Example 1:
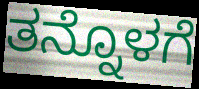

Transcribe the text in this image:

ತನ್ನೊಳಗೆ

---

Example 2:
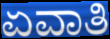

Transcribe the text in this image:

ಏವಾತಿ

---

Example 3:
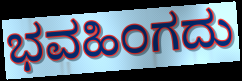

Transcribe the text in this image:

ಭವಹಿಂಗದು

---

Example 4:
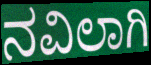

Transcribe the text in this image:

ನವಿಲಾಗಿ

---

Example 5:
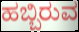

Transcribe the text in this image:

ಹಬ್ಬಿರುವ